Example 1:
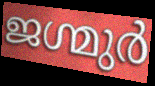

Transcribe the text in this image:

ജഗ്മുർ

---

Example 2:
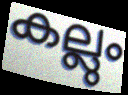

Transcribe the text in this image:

കല്ലും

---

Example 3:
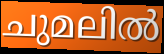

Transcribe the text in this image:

ചുമലിൽ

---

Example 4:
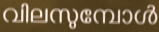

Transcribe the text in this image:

വിലസുമ്പോൾ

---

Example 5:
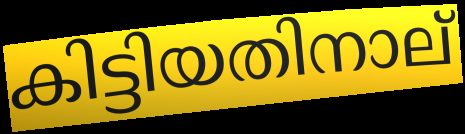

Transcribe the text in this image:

കിട്ടിയതിനാല്